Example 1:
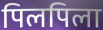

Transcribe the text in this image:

पिलपिला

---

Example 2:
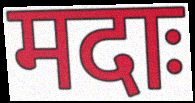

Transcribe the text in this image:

मदाः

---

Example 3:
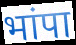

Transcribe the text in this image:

भांपा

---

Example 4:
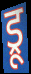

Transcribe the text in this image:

ड्रू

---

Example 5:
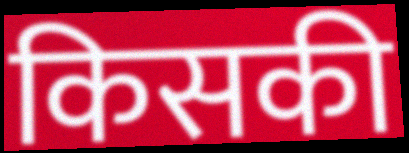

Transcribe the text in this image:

किसकी